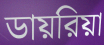
ডায়রিয়া